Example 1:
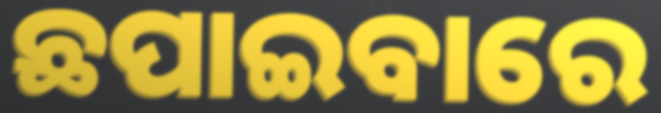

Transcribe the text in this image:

ଛପାଇବାରେ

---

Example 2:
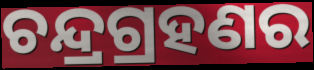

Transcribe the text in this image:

ଚନ୍ଦ୍ରଗ୍ରହଣର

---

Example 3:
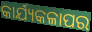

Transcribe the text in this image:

କାର୍ଯ୍ୟକଳାପର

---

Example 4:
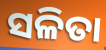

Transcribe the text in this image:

ସଳିତା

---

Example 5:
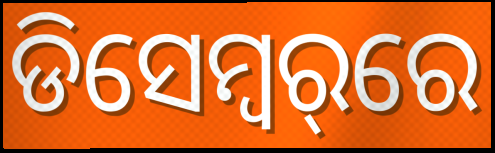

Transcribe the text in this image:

ଡିସେମ୍ବର୍‌ରେ